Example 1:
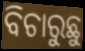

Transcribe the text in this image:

ବିଚାରୁଛୁ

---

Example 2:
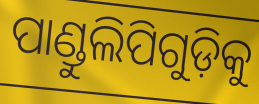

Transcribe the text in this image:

ପାଣ୍ଡୁଲିପିଗୁଡ଼ିକୁ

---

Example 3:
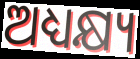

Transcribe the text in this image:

ଅଧ୍ୟକ୍ଷ୍ୟ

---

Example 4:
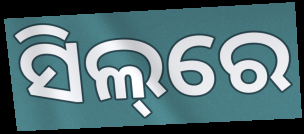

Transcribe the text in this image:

ସିଲ୍‌ରେ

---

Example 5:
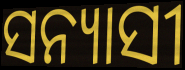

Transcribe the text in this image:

ସନ୍ୟାସୀ